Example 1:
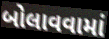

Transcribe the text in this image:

બોલાવવામાં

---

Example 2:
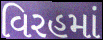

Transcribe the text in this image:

વિરહમાં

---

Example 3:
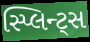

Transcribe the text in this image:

સ્પ્લિન્ટ્સ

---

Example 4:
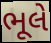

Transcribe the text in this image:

ભૂલે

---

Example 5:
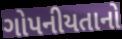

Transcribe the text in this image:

ગોપનીયતાનો